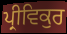
ਪ੍ਰੀਵਿਕੁਰ